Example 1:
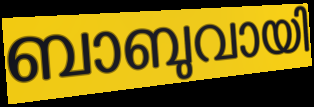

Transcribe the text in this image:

ബാബുവായി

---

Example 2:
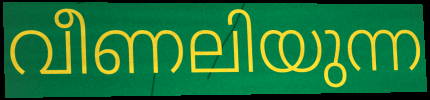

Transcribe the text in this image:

വീണലിയുന്ന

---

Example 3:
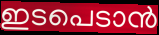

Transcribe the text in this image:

ഇടപെടാൻ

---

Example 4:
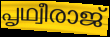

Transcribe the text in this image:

പൃഥ്വീരാജ്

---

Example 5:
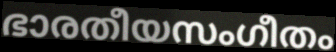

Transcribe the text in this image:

ഭാരതീയസംഗീതം